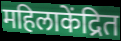
महिलाकेंद्रित